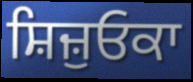
ਸ਼ਿਜ਼ੁਓਕਾ